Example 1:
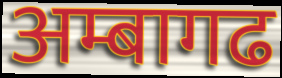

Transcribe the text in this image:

अम्बागढ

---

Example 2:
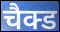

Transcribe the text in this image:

चैक्ड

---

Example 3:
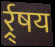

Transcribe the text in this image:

र्र्र्षय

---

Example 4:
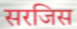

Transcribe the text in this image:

सरजिस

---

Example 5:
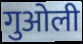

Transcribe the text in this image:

गुओली